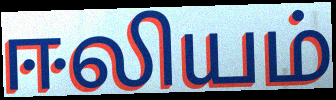
ஈலியம்